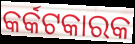
କର୍କଟକାରକ